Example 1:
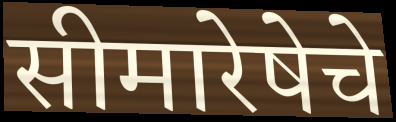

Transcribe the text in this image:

सीमारेषेचे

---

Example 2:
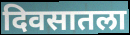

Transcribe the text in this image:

दिवसातला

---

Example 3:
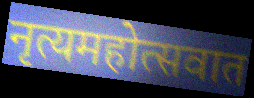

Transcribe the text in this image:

नृत्यमहोत्सवात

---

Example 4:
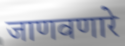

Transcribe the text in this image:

जाणवणारे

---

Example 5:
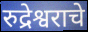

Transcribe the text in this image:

रुद्रेश्वराचे